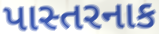
પાસ્તરનાક